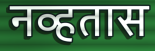
नव्हतास